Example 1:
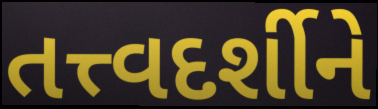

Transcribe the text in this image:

તત્ત્વદર્શીને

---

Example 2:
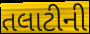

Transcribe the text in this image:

તલાટીની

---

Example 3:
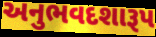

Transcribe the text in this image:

અનુભવદશારૂપ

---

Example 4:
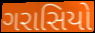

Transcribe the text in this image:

ગરાસિયો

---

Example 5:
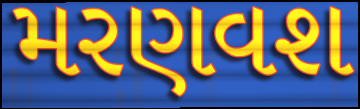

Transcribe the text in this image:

મરણવશ